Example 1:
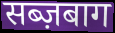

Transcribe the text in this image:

सब्ज़बाग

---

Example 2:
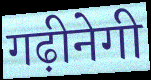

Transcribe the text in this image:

गढ़ीनेगी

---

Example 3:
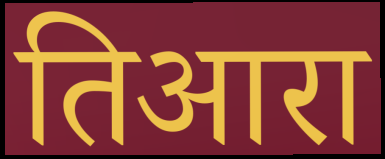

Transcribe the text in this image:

तिआरा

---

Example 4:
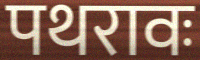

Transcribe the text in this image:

पथरावः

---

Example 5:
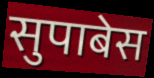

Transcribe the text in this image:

सुपाबेस